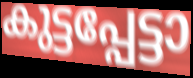
കുട്ടപ്പേട്ടാ